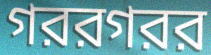
গররগরর